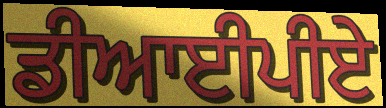
ਡੀਆਈਪੀਏ